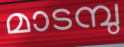
മാടമ്പു